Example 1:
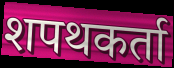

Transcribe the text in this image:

शपथकर्ता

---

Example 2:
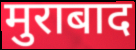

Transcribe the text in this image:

मुराबाद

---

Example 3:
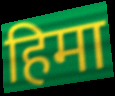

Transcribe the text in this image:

हिमा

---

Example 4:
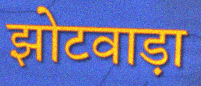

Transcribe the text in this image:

झोटवाड़ा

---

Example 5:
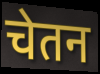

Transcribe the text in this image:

चेतन